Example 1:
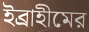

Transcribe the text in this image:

ইব্রাহীমের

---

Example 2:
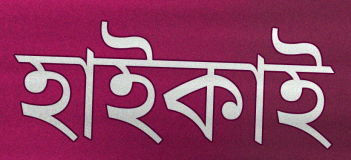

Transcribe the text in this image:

হাইকাই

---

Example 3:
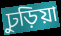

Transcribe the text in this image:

ঢুড়িয়া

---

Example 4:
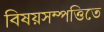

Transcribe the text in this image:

বিষয়সম্পত্তিতে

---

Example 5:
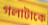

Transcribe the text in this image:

গলাটাকে